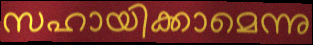
സഹായിക്കാമെന്നു